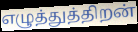
எழுத்துத்திறன்